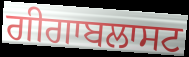
ਗੀਗਾਬਲਾਸਟ